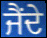
ਜੈਂਦੇ